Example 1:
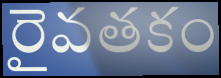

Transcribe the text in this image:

రైవతకం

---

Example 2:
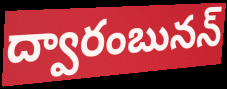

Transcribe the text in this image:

ద్వారంబునన్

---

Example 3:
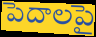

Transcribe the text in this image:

పెదాలపై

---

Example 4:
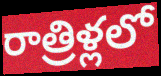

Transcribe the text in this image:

రాత్రిళ్లలో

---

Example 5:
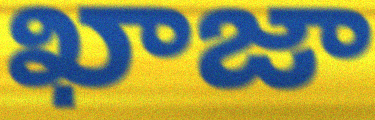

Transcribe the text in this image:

ఖాజా